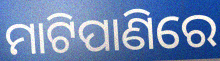
ମାଟିପାଣିରେ